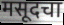
मसूदचा